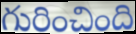
గురించింది